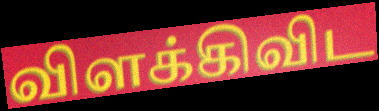
விளக்கிவிட